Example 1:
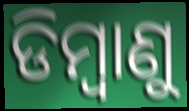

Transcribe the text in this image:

ଡିମ୍ବାଣୁ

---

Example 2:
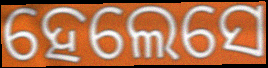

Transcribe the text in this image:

ହେଲେସେ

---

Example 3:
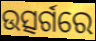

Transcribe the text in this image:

ଉତ୍ସର୍ଗରେ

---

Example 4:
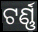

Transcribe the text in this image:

ଟର୍ଣ୍ଣ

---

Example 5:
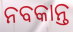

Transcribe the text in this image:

ନବକାନ୍ତ